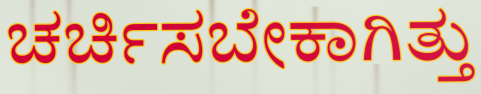
ಚರ್ಚಿಸಬೇಕಾಗಿತ್ತು